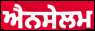
ਐਨਸੇਲਮ